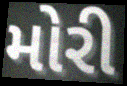
મોરી